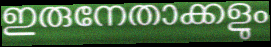
ഇരുനേതാക്കളും